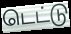
டெட்டு